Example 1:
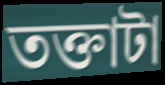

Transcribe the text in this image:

তক্তাটা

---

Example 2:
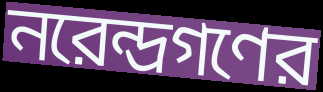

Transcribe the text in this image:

নরেন্দ্রগণের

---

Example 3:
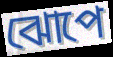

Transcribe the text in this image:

ঝোপে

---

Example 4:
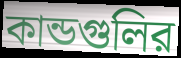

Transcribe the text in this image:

কান্ডগুলির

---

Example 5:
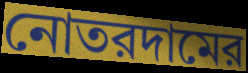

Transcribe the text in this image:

নোতরদামের